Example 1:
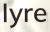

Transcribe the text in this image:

Iyre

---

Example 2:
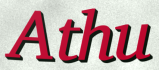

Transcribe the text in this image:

Athu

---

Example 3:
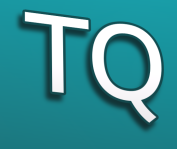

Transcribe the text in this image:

TQ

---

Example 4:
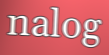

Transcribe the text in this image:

nalog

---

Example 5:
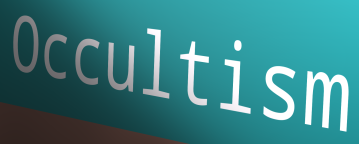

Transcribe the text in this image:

Occultism